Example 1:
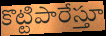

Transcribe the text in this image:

కొట్టిపారేస్తూ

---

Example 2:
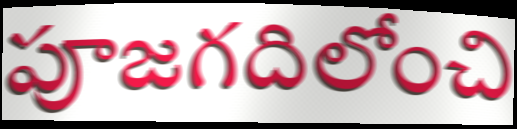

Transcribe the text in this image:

పూజగదిలోంచి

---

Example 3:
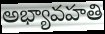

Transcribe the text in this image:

అభ్యావహతి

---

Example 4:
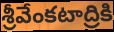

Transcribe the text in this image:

శ్రీవేంకటాద్రికి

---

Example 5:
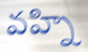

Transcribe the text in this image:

వహ్ని